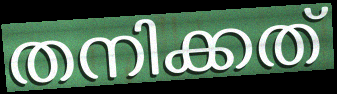
തനിക്കത്